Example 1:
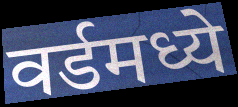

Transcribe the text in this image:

वर्डमध्ये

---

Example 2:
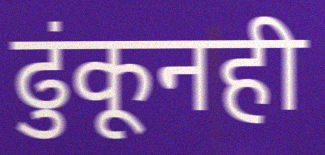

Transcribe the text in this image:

ढुंकूनही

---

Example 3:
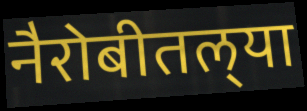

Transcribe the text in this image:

नैरोबीतल्या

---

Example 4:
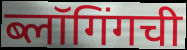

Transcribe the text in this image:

ब्लॉगिंगची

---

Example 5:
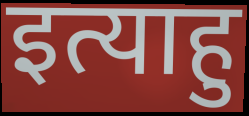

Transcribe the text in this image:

इत्याहु